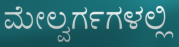
ಮೇಲ್ವರ್ಗಗಳಲ್ಲಿ